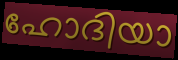
ഹോദിയാ